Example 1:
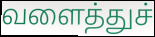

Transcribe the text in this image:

வளைத்துச்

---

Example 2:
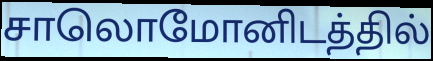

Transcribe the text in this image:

சாலொமோனிடத்தில்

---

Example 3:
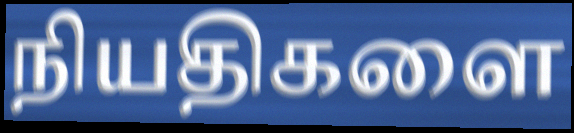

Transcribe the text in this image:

நியதிகளை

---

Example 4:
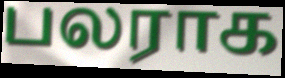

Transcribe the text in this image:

பலராக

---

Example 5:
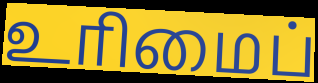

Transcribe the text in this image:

உரிமைப்